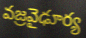
వజ్రవైఢూర్య